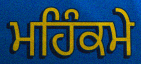
ਮਹਿੰਕਮੇ